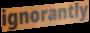
ignorantly